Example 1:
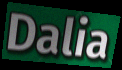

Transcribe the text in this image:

Dalia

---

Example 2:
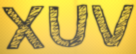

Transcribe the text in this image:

XUV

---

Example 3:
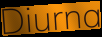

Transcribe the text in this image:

Diurna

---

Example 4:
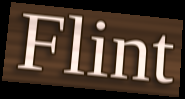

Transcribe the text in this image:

Flint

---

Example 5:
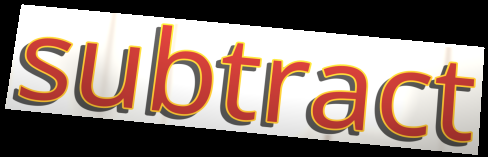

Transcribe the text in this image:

subtract